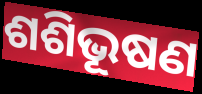
ଶଶିଭୂଷଣ